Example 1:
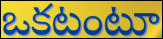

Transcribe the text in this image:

ఒకటంటూ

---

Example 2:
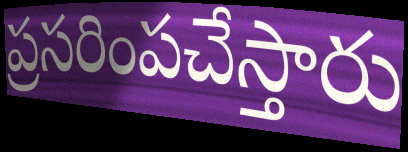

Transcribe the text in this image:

ప్రసరింపచేస్తారు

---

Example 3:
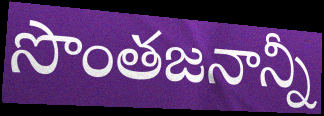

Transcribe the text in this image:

సొంతజనాన్నీ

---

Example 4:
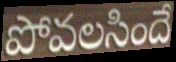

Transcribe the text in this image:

పోవలసిందే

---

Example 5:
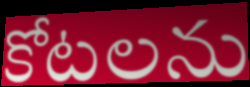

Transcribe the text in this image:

కోటలను